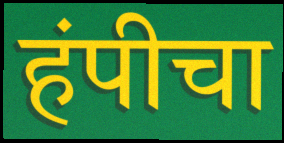
हंपीचा